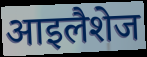
आइलैशेज